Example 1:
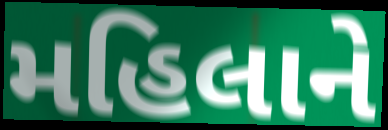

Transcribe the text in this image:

મહિલાને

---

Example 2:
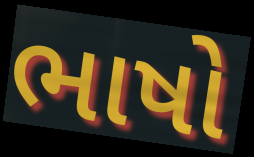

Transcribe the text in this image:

ભાષો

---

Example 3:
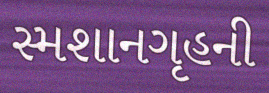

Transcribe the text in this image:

સ્મશાનગૃહની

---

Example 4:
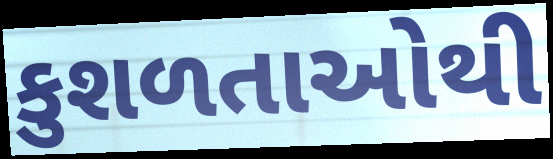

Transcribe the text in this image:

કુશળતાઓથી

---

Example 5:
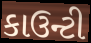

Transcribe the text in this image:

કાઉન્ટી